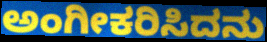
ಅಂಗೀಕರಿಸಿದನು